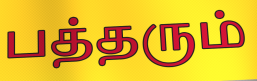
பத்தரும்